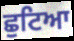
ਛੁਟਿਆ